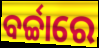
ବର୍ଚ୍ଚାରେ